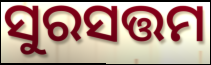
ସୁରସତ୍ତମ